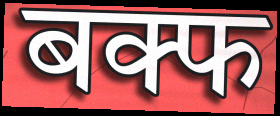
बक्फ